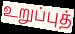
உறுப்புத்